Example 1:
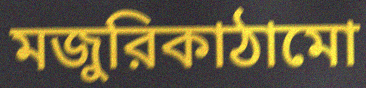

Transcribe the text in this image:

মজুরিকাঠামো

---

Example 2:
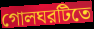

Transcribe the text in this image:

গোলঘরটিতে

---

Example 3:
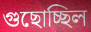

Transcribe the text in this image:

গুছোচ্ছিল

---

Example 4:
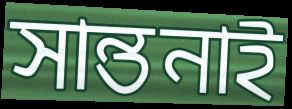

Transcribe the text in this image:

সান্তনাই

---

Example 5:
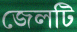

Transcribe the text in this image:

জেলটি